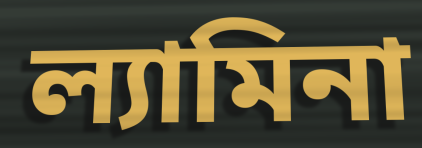
ল্যামিনা